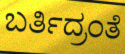
ಬರ್ತಿದ್ರಂತೆ